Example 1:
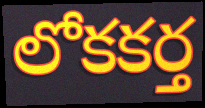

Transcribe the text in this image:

లోకకర్త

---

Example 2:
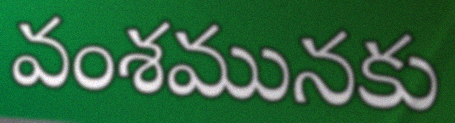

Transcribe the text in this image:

వంశమునకు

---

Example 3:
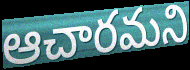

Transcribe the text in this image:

ఆచారమని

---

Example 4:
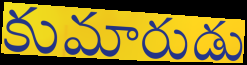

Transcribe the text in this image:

కుమారుడు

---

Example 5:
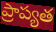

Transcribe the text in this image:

ప్రాప్యత